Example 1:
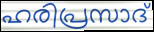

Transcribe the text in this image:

ഹരിപ്രസാദ്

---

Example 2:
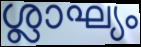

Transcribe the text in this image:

ശ്ലാഘ്യം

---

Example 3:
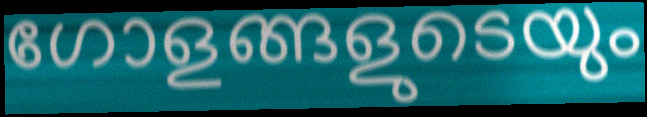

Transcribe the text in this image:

ഗോളങ്ങളുടെയും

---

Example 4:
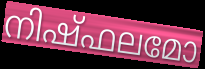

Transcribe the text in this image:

നിഷ്ഫലമോ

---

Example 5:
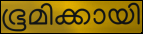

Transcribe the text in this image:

ഭൂമിക്കായി